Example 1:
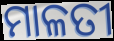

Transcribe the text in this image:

ମାଳତୀ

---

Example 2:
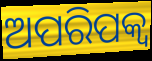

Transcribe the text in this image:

ଅପରିପକ୍ୱ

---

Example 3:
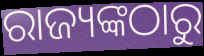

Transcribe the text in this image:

ରାଜ୍ୟଙ୍କଠାରୁ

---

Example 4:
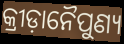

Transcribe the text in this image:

କ୍ରୀଡ଼ାନୈପୁଣ୍ୟ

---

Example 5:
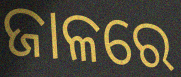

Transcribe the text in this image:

ଜାଳରେ